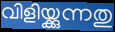
വിളിയ്ക്കുന്നതു